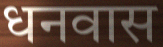
धनवास